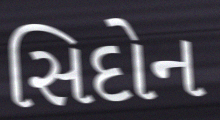
સિદોન